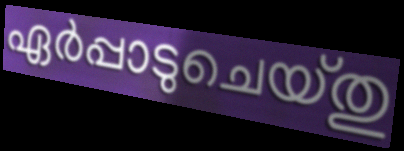
ഏർപ്പാടുചെയ്തു